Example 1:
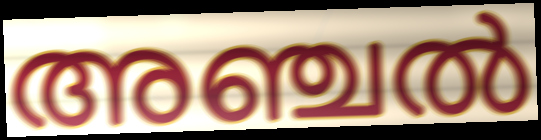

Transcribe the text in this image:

അഞ്ചൽ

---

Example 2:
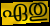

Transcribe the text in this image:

ഏതു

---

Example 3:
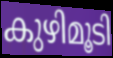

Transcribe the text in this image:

കുഴിമൂടി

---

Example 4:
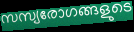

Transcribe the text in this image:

സസ്യരോഗങ്ങളുടെ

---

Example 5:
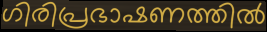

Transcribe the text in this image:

ഗിരിപ്രഭാഷണത്തിൽ